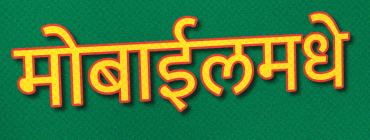
मोबाईलमधे